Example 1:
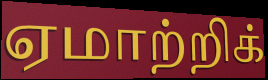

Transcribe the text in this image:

ஏமாற்றிக்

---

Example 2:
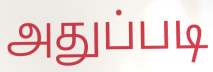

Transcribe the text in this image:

அதுப்படி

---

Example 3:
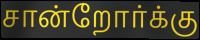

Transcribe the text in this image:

சான்றோர்க்கு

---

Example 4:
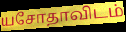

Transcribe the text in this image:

யசோதாவிடம்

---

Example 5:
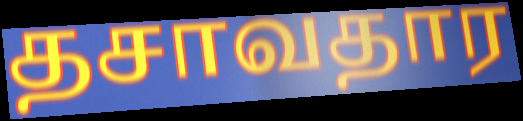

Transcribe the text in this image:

தசாவதார